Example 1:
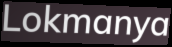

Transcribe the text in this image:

Lokmanya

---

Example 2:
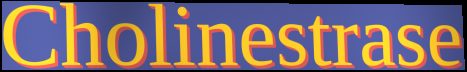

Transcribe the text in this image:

Cholinestrase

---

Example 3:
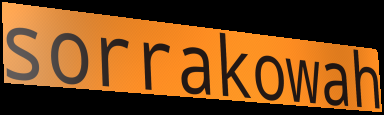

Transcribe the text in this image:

sorrakowah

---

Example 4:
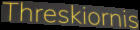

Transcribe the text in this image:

Threskiornis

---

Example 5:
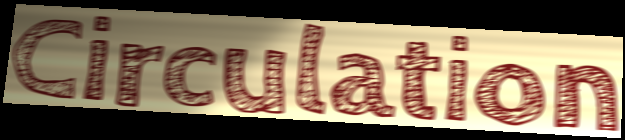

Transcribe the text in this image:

Circulation